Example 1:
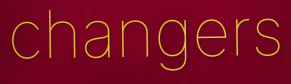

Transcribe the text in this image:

changers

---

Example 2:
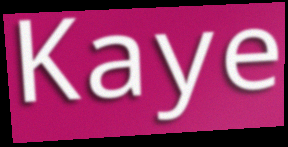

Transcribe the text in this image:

Kaye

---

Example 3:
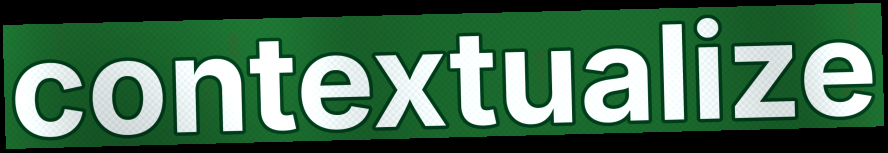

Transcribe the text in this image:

contextualize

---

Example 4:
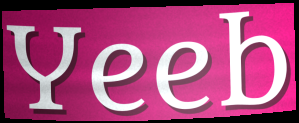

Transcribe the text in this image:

Yeeb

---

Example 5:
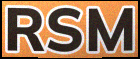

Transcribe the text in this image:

RSM